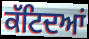
ਕੱਟਿਦਆਂ